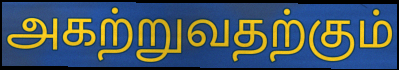
அகற்றுவதற்கும்